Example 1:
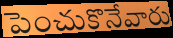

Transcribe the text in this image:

పెంచుకొనేవారు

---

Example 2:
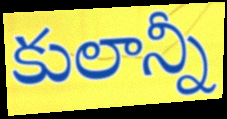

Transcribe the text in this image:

కులాన్నీ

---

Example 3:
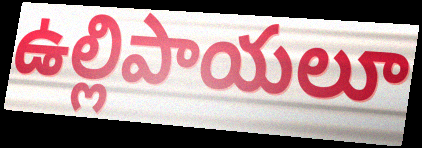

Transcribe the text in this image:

ఉల్లిపాయలూ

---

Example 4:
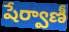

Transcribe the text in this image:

షేర్వాణీ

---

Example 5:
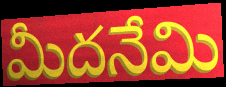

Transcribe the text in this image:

మీదనేమి